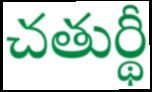
చతుర్థీ